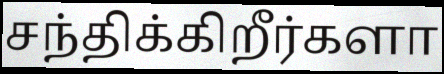
சந்திக்கிறீர்களா